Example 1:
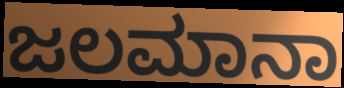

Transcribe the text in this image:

ಜಲಮಾನಾ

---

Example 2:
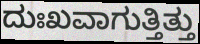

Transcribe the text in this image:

ದುಃಖವಾಗುತ್ತಿತ್ತು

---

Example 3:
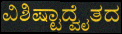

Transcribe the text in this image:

ವಿಶಿಷ್ಟಾದ್ವೈತದ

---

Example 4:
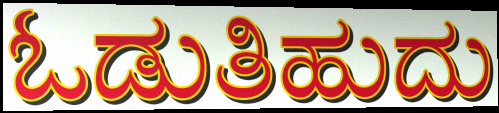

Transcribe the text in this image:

ಓಡುತಿಹುದು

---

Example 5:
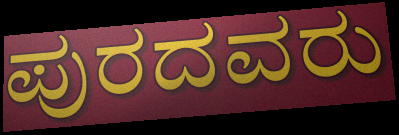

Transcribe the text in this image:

ಪುರದವರು